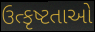
ઉત્કૃષ્ટતાઓ